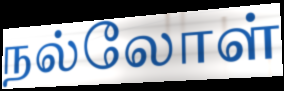
நல்லோள்